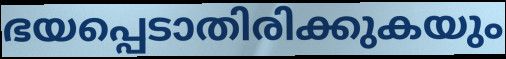
ഭയപ്പെടാതിരിക്കുകയും